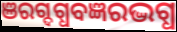
ଞରଗ୍ଦଗ୍ଧବଜ୍ଞରଦ୍ଭଗ୍ଧ